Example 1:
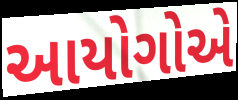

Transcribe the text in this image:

આયોગોએ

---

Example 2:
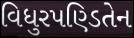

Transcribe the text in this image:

વિધુરપણ્ડિતેન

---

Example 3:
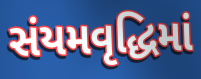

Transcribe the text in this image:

સંયમવૃદ્ધિમાં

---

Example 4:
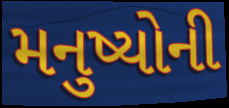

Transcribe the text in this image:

મનુષ્યોની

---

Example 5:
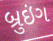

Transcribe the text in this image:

બ્રુઇંગ